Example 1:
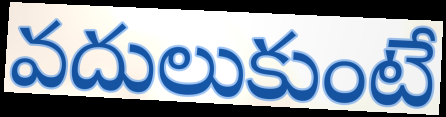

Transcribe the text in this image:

వదులుకుంటే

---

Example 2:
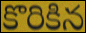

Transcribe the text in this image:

కొరికిన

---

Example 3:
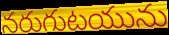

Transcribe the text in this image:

నరుగుటయును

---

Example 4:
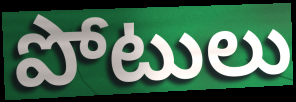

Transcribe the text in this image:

పోటులు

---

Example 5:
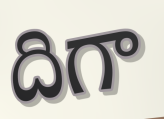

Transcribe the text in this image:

దిగా